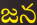
జన